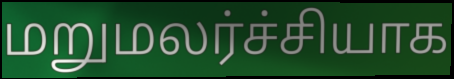
மறுமலர்ச்சியாக